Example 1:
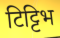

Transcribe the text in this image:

टिट्टिभ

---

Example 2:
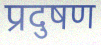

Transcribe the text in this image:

प्रदुषण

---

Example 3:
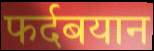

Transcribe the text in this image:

फर्दबयान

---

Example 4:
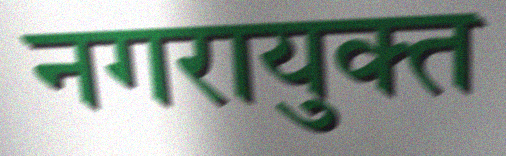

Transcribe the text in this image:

नगरायुक्त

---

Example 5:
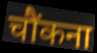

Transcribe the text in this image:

चौंकना